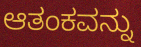
ಆತಂಕವನ್ನು